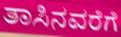
ತಾಸಿನವರೆಗೆ